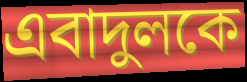
এবাদুলকে